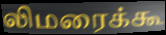
லிமரைக்கூ